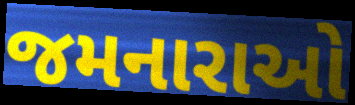
જમનારાઓ